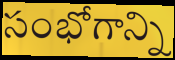
సంభోగాన్ని